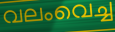
വലംവെച്ച